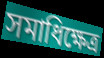
সমাধিক্ষেত্ৰ